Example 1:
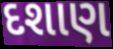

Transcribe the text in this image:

દશાણ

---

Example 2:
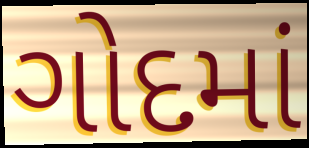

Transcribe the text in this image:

ગોદમાં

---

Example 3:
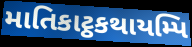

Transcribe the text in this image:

માતિકાટ્ઠકથાયમ્પિ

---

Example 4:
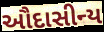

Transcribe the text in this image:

ઔદાસીન્ય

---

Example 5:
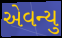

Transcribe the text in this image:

એવન્યુ